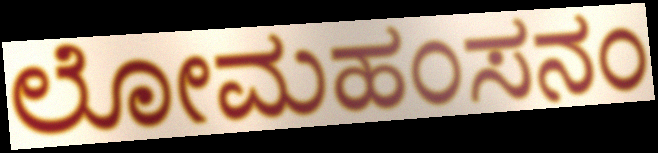
ಲೋಮಹಂಸನಂ